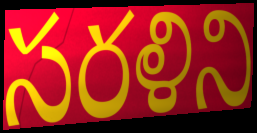
సరళిని